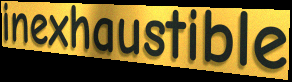
inexhaustible